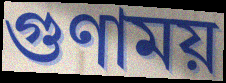
গুণাময়